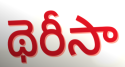
థెరీసా